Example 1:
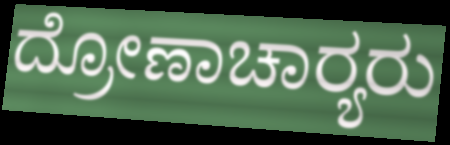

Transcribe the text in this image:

ದ್ರೋಣಾಚಾರ‍್ಯರು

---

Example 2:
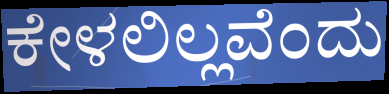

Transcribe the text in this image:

ಕೇಳಲಿಲ್ಲವೆಂದು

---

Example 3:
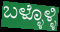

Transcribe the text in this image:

ಬಳ್ಳೊಳ್ಳಿ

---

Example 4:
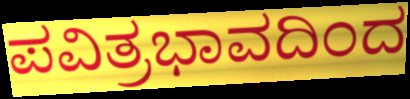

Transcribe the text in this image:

ಪವಿತ್ರಭಾವದಿಂದ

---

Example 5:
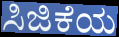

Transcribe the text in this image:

ಸಿಜಿಕೆಯ